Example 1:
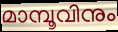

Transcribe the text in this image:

മാമ്പൂവിനും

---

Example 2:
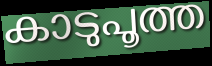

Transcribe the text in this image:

കാടുപൂത്ത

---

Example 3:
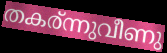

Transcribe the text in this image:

തകര്ന്നുവീണു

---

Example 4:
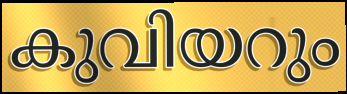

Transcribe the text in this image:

കുവിയറും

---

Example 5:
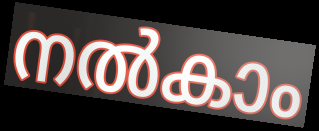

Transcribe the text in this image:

നൽകാം